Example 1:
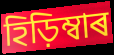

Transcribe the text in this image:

হিড়িম্বাৰ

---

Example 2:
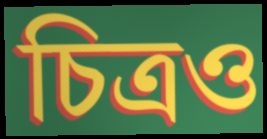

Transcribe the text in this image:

চিত্ৰও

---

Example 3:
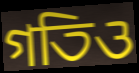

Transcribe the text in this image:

গতিও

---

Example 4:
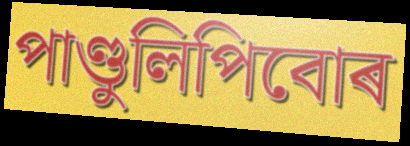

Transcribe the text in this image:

পাণ্ডুলিপিবোৰ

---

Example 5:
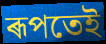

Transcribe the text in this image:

ৰূপতেই